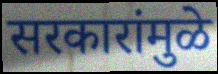
सरकारांमुळे